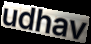
udhav